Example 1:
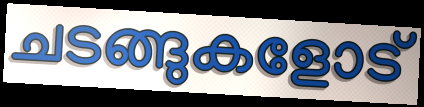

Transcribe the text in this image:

ചടങ്ങുകളോട്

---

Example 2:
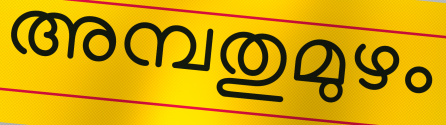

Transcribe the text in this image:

അമ്പതുമുഴം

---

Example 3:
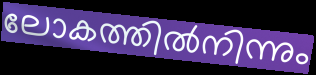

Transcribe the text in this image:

ലോകത്തിൽനിന്നും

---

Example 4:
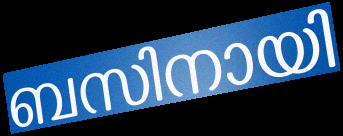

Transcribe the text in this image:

ബസിനായി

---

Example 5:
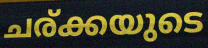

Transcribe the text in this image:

ചര്ക്കയുടെ